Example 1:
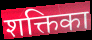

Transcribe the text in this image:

शक्तिका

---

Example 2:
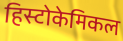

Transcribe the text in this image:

हिस्टोकेमिकल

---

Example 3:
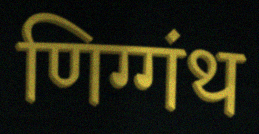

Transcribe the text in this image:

णिग्गंथ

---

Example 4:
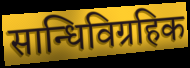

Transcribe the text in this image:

सान्धिविग्रहिक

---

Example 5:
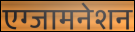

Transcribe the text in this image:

एग्जामनेशन